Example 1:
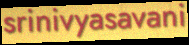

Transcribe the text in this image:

srinivyasavani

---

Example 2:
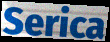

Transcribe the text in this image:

Serica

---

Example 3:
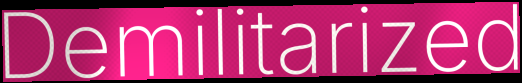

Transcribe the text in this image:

Demilitarized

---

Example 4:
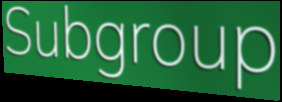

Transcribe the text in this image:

Subgroup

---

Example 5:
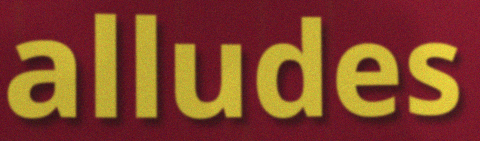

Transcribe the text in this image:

alludes